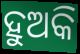
ହୁଅକି